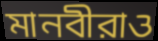
মানবীরাও